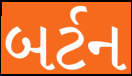
બર્ટન